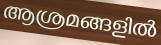
ആശ്രമങ്ങളിൽ